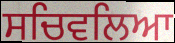
ਸਚਿਵਲਿਆ